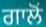
ਗਾਲੋਂ